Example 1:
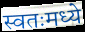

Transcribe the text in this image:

स्वतःमध्ये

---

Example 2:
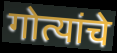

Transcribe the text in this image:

गोत्यांचे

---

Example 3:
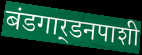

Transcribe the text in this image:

बंडगार्डनपाशी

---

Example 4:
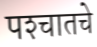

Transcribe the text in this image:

पश्चातचे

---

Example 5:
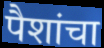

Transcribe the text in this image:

पैशांचा